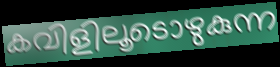
കവിളിലൂടൊഴുകുന്ന